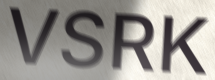
VSRK